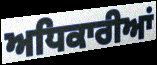
ਅਧਿਕਾਰੀਆਂ